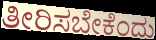
ತೀರಿಸಬೇಕೆಂದು